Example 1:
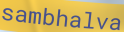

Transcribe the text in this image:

sambhalva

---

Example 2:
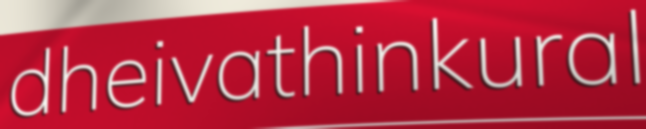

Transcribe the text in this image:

dheivathinkural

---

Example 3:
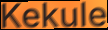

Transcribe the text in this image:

Kekule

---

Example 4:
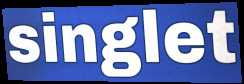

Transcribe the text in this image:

singlet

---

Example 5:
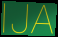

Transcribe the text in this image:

IJA